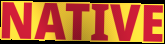
NATIVE